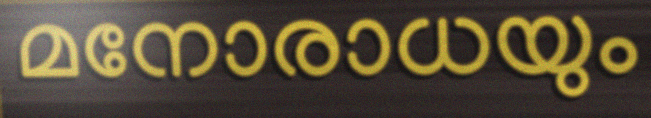
മനോരാധയും